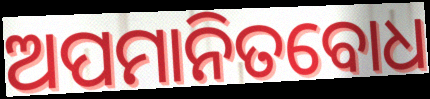
ଅପମାନିତବୋଧ